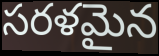
సరళమైన